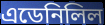
এডেনিলিল